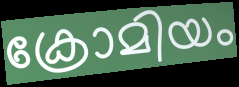
ക്രോമിയം